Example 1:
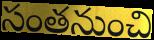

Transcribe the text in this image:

సంతనుంచి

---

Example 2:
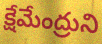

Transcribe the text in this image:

క్షేమేంద్రుని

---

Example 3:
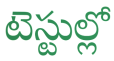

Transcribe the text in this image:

టెస్టుల్లో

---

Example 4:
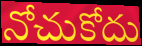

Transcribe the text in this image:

నోచుకోదు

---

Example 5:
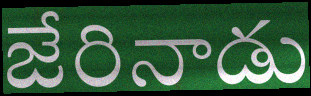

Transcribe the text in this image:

జేరినాడు